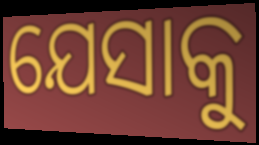
ଯେସାକୁ